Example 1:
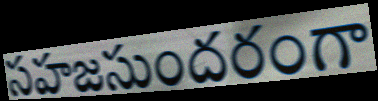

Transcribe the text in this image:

సహజసుందరంగా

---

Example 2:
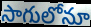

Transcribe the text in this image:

సాగులోనూ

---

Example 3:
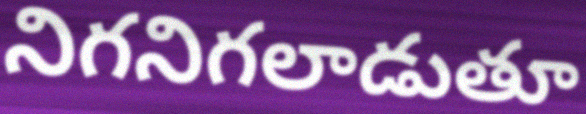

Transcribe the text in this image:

నిగనిగలాడుతూ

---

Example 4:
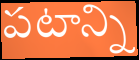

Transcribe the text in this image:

పటాన్ని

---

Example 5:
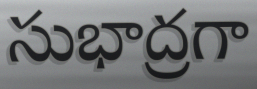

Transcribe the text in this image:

సుభాద్రగా